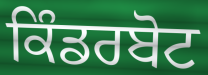
ਕਿੰਡਰਬੋਟ